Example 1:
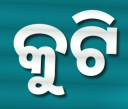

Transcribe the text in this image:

କୁଟି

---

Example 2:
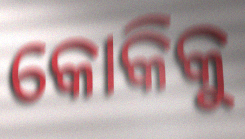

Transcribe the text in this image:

କୋକିକୁ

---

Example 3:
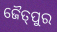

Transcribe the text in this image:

ଜୈତ୍‌ପୁର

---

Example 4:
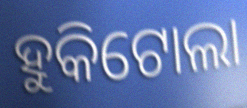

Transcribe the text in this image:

ହୁକିଟୋଲା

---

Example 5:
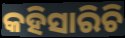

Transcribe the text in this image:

କହିସାରିଚି